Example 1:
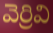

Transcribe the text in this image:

వెర్రివి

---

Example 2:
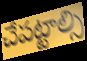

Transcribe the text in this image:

చేపట్టాల్సి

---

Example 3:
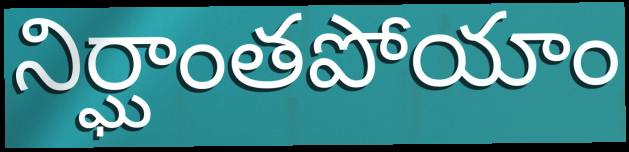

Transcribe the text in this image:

నిర్ఘాంతపోయాం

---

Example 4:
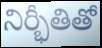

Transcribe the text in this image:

నిర్భీతితో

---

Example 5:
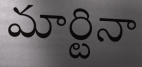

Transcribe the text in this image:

మార్టినా